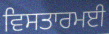
ਵਿਸਤਾਰਮਈ